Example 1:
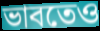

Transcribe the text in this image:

ভাবতেও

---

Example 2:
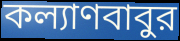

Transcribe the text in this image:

কল্যাণবাবুর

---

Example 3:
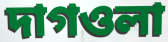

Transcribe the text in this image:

দাগওলা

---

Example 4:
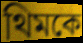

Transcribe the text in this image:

থিমকে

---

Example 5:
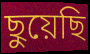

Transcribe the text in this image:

ছুয়েছি